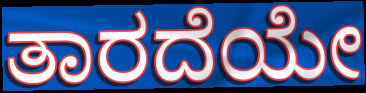
ತಾರದೆಯೇ